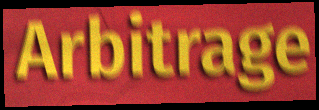
Arbitrage